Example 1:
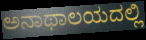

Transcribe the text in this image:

ಅನಾಥಾಲಯದಲ್ಲಿ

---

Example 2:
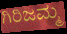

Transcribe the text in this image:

ಗಿರಿಜಮ್ಮ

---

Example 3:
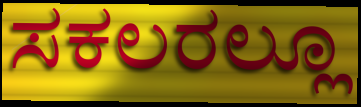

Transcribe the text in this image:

ಸಕಲರಲ್ಲೂ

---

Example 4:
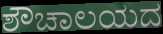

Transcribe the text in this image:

ಶೌಚಾಲಯದ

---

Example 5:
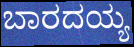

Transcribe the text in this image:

ಬಾರದಯ್ಯ